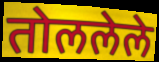
तोललेले